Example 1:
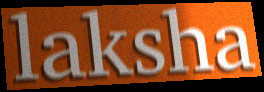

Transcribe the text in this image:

laksha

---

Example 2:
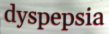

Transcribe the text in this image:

dyspepsia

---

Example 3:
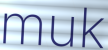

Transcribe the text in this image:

muk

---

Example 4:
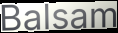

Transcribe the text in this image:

Balsam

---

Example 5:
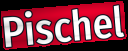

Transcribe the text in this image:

Pischel